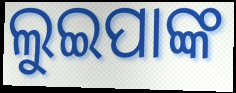
ଲୁଇପାଙ୍କ